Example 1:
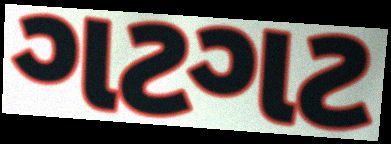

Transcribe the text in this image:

ગટગટ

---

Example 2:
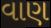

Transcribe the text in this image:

વાણ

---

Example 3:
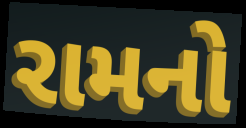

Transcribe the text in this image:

રામનો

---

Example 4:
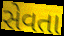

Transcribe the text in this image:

સેવતા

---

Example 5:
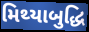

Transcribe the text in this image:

મિથ્યાબુદ્ધિ